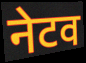
नेटव